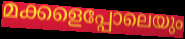
മക്കളെപ്പോലെയും